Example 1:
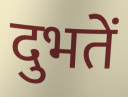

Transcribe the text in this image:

दुभतें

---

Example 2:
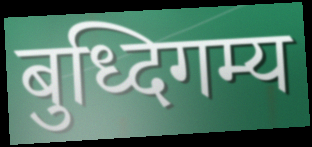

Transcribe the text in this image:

बुध्दिगम्य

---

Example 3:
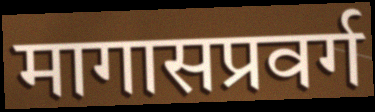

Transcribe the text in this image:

मागासप्रवर्ग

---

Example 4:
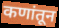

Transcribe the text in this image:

कणांतून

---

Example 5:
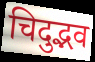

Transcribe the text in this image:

चिदुद्भव